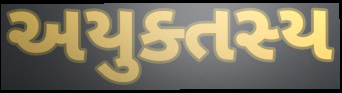
અયુક્તસ્ય